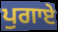
ਪੁਗਾਏ